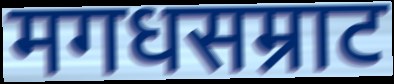
मगधसम्राट